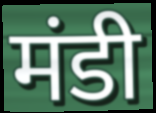
मंडी